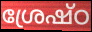
ശ്രേഷ്ഠ